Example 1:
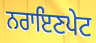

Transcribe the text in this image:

ਨਰਾਇਣਪੇਟ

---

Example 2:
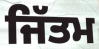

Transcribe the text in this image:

ਜਿੱਤਮ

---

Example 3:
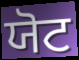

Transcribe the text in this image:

ਯੋਟ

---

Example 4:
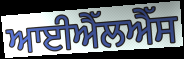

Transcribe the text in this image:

ਆਈਐੱਲਐੱਸ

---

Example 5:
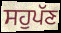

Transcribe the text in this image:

ਸਹੁਪੱਣ